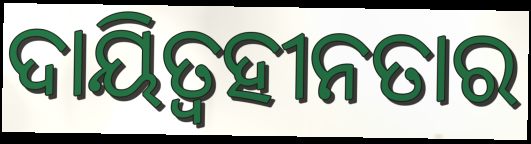
ଦାୟିତ୍ଵହୀନତାର